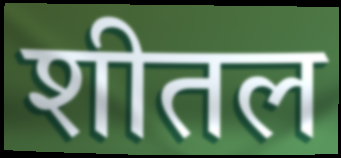
शीतल